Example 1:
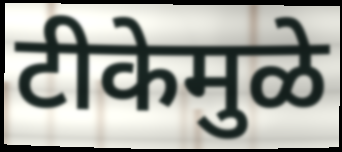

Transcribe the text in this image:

टीकेमुळे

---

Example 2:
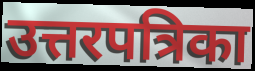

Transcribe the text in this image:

उत्तरपत्रिका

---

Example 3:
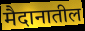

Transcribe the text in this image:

मैदानातील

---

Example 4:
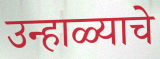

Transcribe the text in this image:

उन्हाळ्याचे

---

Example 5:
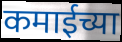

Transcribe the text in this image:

कमाईच्या